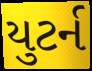
યુટર્ન